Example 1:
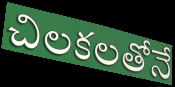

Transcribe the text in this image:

చిలకలతోనే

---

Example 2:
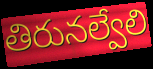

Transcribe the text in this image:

తిరునల్వేలి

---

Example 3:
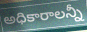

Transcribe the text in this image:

అధికారాలన్నీ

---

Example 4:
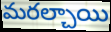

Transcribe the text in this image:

మరల్చాయి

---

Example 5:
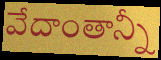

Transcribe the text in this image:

వేదాంతాన్నీ